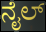
ನೈಲ್